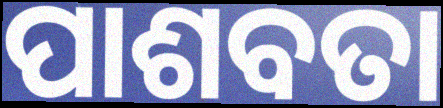
ପାଶବତା